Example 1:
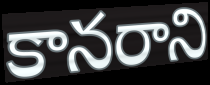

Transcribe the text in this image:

కానరాని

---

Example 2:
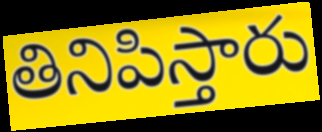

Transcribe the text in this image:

తినిపిస్తారు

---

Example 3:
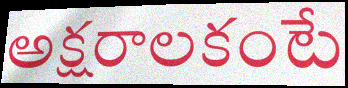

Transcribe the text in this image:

అక్షరాలకంటే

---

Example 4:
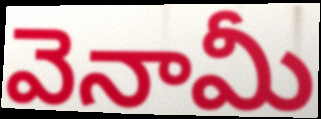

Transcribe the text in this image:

వెనామీ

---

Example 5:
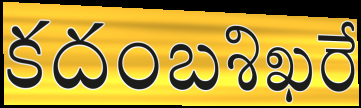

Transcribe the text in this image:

కదంబశిఖరే